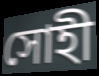
সোহী